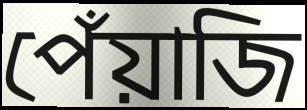
পেঁয়াজি